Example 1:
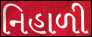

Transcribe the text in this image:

નિહાળી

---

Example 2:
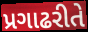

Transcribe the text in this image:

પ્રગાઢરીતે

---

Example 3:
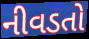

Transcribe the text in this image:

નીવડતો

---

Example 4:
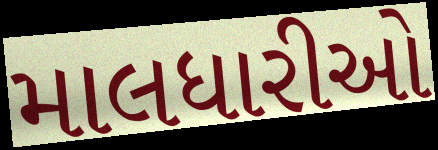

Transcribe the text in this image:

માલધારીઓ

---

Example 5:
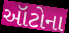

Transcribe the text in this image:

ઑટોના